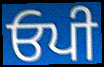
ਓਪੀ